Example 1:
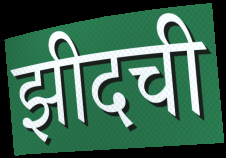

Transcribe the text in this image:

झीदची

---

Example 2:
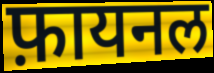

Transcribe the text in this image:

फ़ायनल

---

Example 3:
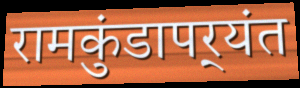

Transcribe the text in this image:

रामकुंडापर्यंत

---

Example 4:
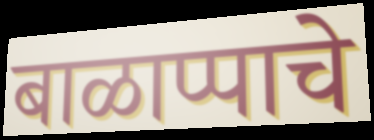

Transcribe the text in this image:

बाळाप्पाचे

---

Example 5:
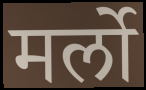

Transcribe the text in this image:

मर्लो